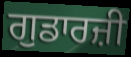
ਗੁਡਾਰਜ਼ੀ